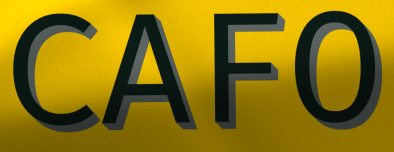
CAFO